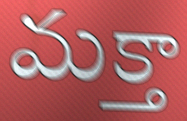
మక్తా